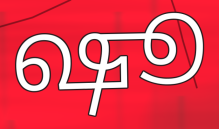
ஷூ